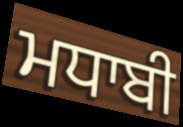
ਮਧਾਬੀ